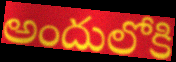
అందులోకి